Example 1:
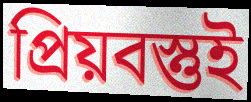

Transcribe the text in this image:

প্রিয়বস্তুই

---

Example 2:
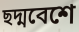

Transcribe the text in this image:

ছদ্মবেশে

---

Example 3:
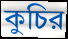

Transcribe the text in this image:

কুচির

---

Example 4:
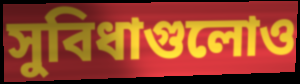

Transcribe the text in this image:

সুবিধাগুলোও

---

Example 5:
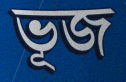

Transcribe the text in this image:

ভূজ